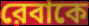
রেবাকে